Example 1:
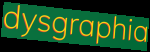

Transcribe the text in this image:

dysgraphia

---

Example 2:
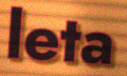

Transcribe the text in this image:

leta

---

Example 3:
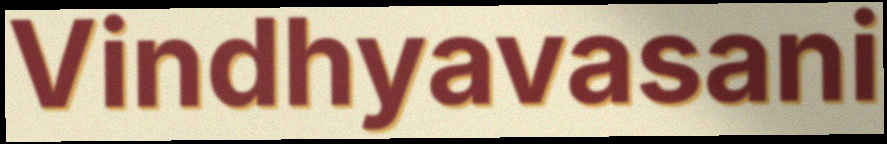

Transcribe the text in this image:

Vindhyavasani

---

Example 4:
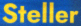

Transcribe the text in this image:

Steller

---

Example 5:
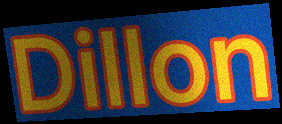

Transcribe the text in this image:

Dillon